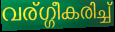
വര്ഗ്ഗീകരിച്ച്